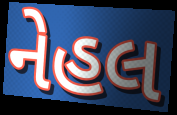
નેહલ